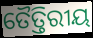
ତୈତ୍ତିରୀୟ